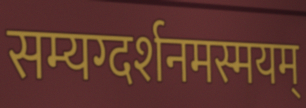
सम्यग्दर्शनमस्मयम्